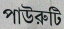
পাউরুটি